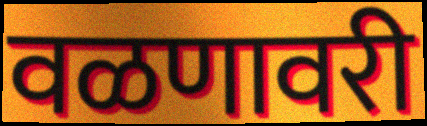
वळणावरी